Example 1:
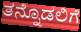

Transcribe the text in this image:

ತನ್ನೊಡಲಿಗೆ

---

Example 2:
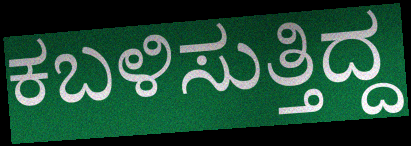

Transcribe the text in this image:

ಕಬಳಿಸುತ್ತಿದ್ದ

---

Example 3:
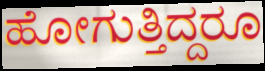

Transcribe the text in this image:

ಹೋಗುತ್ತಿದ್ದರೂ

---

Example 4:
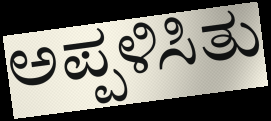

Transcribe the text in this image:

ಅಪ್ಪಳಿಸಿತು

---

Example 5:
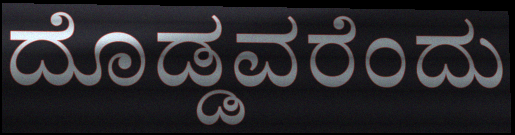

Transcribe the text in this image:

ದೊಡ್ಡವರೆಂದು